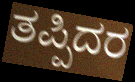
ತಪ್ಪಿದರ